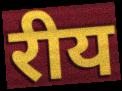
रीय